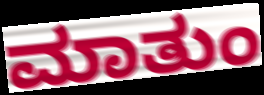
ಮಾತುಂ